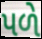
પળે